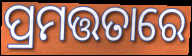
ପ୍ରମତ୍ତତାରେ